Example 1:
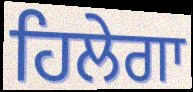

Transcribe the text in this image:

ਹਿਲੇਗਾ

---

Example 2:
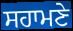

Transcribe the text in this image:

ਸਹਾਮਣੇ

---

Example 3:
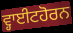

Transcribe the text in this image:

ਵ੍ਹਾਈਟਹੋਰਨ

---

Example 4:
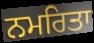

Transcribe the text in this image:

ਨਮਰਿਤਾ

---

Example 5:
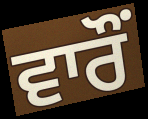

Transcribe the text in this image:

ਵਾਰੌਂ